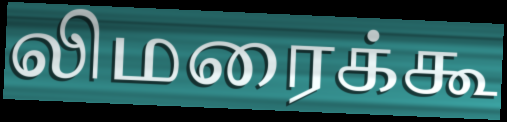
லிமரைக்கூ